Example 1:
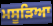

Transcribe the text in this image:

ਮਸੂੜਿਆ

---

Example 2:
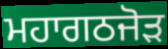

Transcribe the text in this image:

ਮਹਾਗਠਜੋੜ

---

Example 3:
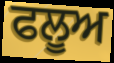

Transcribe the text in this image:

ਫਲੂਅ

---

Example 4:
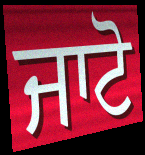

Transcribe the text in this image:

ਜਾਟੋ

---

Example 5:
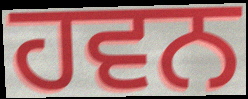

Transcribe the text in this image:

ਹਵਨ